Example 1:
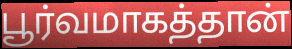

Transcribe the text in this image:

பூர்வமாகத்தான்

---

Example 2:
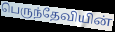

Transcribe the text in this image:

பெருந்தேவியின்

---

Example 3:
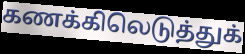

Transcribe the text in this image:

கணக்கிலெடுத்துக்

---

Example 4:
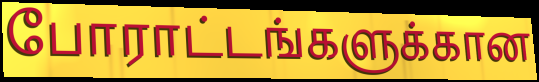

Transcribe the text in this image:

போராட்டங்களுக்கான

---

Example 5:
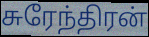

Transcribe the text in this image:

சுரேந்திரன்